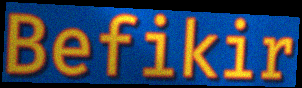
Befikir